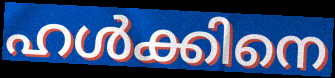
ഹൾക്കിനെ